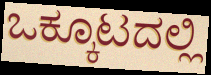
ಒಕ್ಕೂಟದಲ್ಲಿ